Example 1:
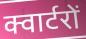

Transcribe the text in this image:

क्वार्टरों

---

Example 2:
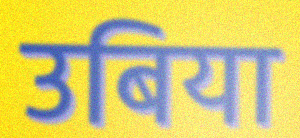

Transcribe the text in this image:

उबिया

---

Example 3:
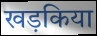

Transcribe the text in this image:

खड़किया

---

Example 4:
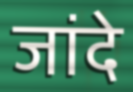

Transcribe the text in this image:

जांदे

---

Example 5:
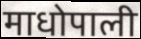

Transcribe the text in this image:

माधोपाली